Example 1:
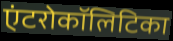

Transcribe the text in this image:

एंटरोकॉलिटिका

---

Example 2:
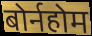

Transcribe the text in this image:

बोर्नहोम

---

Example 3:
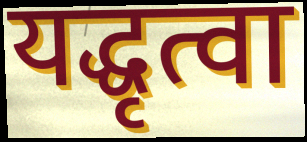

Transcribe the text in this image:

यद्धृत्वा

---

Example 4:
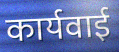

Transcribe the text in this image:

कार्यवाई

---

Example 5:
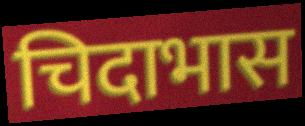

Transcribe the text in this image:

चिदाभास